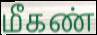
மீகண்